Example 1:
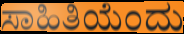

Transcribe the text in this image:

ಸಾಹಿತಿಯೆಂದು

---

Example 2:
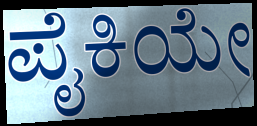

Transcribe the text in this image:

ಪೈಕಿಯೇ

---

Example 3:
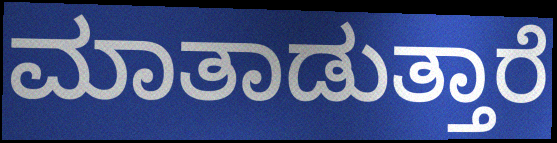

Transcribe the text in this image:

ಮಾತಾಡುತ್ತಾರೆ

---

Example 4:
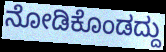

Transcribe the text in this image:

ನೋಡಿಕೊಂಡದ್ದು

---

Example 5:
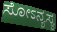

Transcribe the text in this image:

ಸೋಽನ್ಯಸ್ಯ